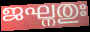
ജഘ്നതുഃ